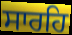
ਸਾਰਹਿ